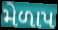
મેળાપ